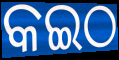
କଇଠ